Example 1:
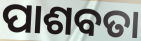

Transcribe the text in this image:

ପାଶବତା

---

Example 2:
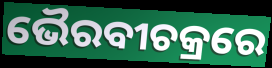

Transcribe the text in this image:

ଭୈରବୀଚକ୍ରରେ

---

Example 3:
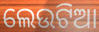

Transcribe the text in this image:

ଲେଉଟିଆ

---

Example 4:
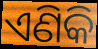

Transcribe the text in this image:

ଏଣିକି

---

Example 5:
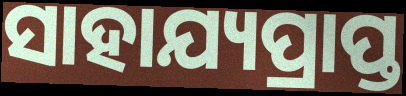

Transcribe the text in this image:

ସାହାଯ୍ୟପ୍ରାପ୍ତ